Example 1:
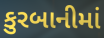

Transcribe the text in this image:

કુરબાનીમાં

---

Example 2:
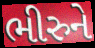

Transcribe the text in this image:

ભીરુને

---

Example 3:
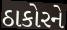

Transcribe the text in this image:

ઠાકોરને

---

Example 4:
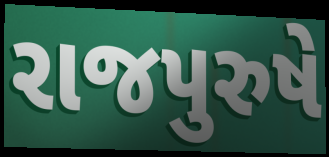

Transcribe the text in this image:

રાજપુરુષે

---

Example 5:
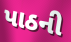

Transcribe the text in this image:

પાઠની